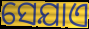
ସେଯାଏ